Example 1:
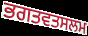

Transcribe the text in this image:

ਭਗਤਵਤਸਲਮ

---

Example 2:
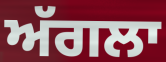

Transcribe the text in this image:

ਅੱਗਲਾ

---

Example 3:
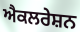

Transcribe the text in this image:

ਐਕਲਰੇਸ਼ਨ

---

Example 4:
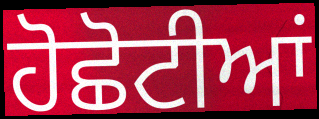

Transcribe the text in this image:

ਹੋਛੋਟੀਆਂ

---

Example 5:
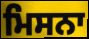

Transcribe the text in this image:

ਮਿਸਨਾ